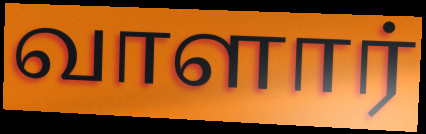
வாளார்